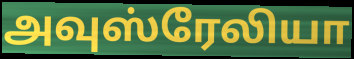
அவுஸ்ரேலியா